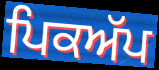
ਪਿਕਅੱਪ